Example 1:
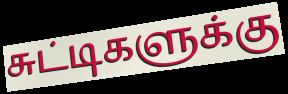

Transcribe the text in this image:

சுட்டிகளுக்கு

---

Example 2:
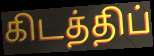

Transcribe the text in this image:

கிடத்திப்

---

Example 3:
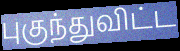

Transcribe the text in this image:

புகுந்துவிட்ட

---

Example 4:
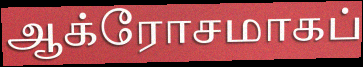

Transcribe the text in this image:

ஆக்ரோசமாகப்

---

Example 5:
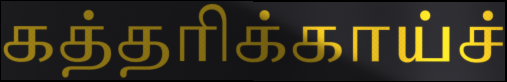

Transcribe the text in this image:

கத்தரிக்காய்ச்